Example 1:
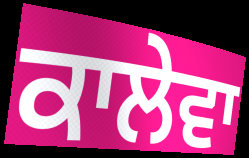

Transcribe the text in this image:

ਕਾਲੇਵਾ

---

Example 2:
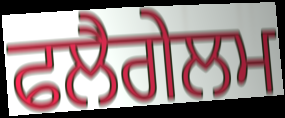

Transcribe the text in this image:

ਫਲੈਗੇਲਮ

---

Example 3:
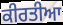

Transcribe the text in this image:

ਕੀਰਤੀਆ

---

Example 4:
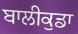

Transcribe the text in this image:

ਬਾਲੀਕੁਡਾ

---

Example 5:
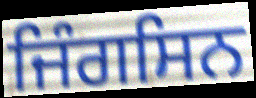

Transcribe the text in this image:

ਜਿੰਗਸਿਨ